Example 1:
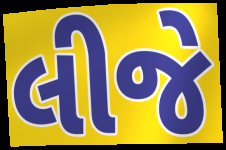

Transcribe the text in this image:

લીજે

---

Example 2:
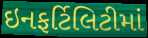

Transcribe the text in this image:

ઇનફર્ટિલિટીમાં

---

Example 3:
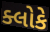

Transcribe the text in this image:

ક્લોકે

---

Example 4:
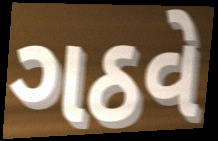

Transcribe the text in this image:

ગઠવે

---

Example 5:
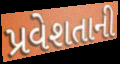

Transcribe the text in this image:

પ્રવેશતાની